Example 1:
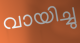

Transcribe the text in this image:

വായിച്ചു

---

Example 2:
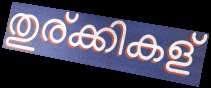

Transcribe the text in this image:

തുര്ക്കികള്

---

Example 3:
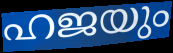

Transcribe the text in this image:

ഹജയും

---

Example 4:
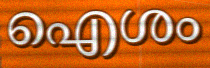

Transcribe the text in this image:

ഐശം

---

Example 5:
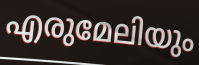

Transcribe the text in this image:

എരുമേലിയും